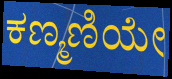
ಕಣ್ಮಣಿಯೇ